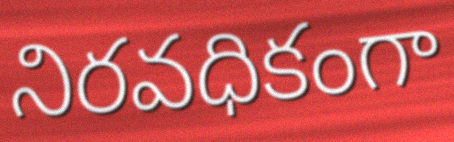
నిరవధికంగా